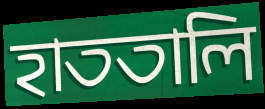
হাততালি